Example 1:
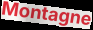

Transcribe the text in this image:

Montagne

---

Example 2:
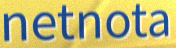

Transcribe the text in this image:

netnota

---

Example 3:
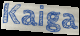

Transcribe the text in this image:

Kaiga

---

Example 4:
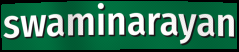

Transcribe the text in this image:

swaminarayan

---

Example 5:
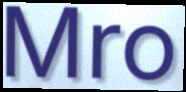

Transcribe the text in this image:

Mro